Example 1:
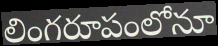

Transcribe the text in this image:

లింగరూపంలోనూ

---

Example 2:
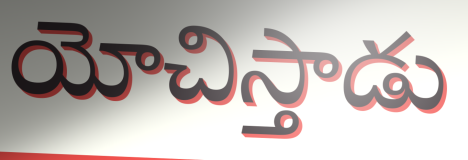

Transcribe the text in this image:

యోచిస్తాడు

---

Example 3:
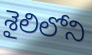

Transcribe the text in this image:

శైలిలోని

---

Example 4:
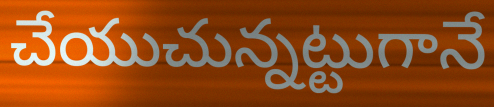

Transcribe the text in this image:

చేయుచున్నట్టుగానే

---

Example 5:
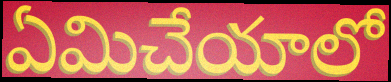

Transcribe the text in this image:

ఏమిచేయాలో